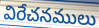
విరేచనములు